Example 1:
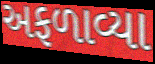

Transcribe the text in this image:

અફળાવ્યા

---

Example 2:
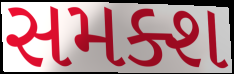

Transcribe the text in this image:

સમક્શ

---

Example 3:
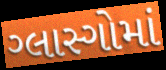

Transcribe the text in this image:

ગ્લાસ્ગોમાં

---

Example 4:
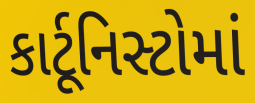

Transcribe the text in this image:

કાર્ટૂનિસ્ટોમાં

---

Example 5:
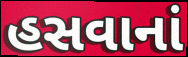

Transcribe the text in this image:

હસવાનાં